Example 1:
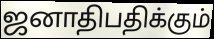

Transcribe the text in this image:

ஜனாதிபதிக்கும்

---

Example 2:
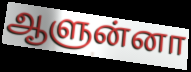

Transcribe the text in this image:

ஆளுன்னா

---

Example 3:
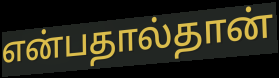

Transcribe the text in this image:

என்பதால்தான்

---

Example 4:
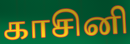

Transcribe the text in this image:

காசினி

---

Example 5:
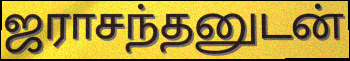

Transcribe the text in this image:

ஜராசந்தனுடன்